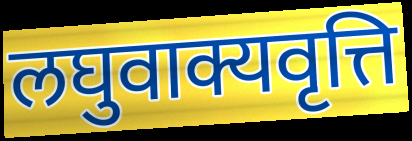
लघुवाक्यवृत्ति